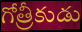
గోత్రీకుడు